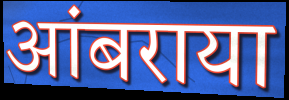
आंबराया